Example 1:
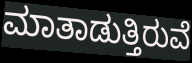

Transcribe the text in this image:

ಮಾತಾಡುತ್ತಿರುವೆ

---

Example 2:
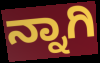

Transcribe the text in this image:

ನ್ನಾಗಿ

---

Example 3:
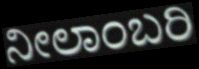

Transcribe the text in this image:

ನೀಲಾಂಬರಿ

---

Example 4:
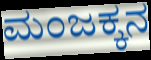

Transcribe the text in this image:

ಮಂಜಕ್ಕನ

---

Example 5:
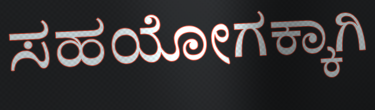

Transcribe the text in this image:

ಸಹಯೋಗಕ್ಕಾಗಿ